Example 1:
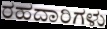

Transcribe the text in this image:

ರಹದಾರಿಗಳು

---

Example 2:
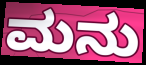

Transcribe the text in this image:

ಮನು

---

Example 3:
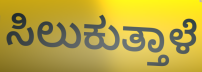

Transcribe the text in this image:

ಸಿಲುಕುತ್ತಾಳೆ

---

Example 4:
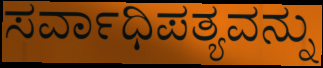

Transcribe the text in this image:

ಸರ್ವಾಧಿಪತ್ಯವನ್ನು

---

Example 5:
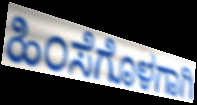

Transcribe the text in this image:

ಹಿಂಸೆಗೊಳಗಾಗಿ